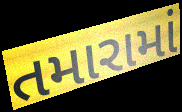
તમારામાં